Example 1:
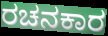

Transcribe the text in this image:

ರಚನಕಾರ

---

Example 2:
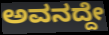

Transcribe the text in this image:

ಅವನದ್ದೇ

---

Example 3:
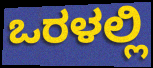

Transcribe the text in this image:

ಒರಳಲ್ಲಿ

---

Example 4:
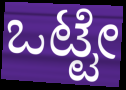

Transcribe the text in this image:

ಒಟ್ಟೇ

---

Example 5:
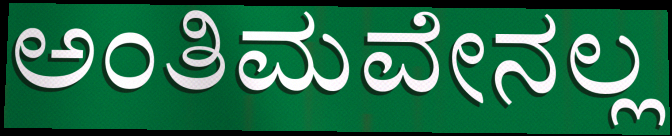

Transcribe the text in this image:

ಅಂತಿಮವೇನಲ್ಲ